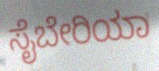
ಸೈಬೇರಿಯಾ